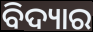
ବିଦ୍ୟାର